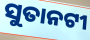
ସୁତାନଟୀ